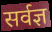
सर्वज्ञ